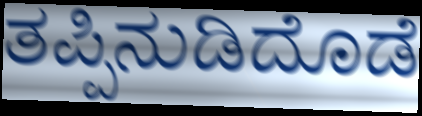
ತಪ್ಪಿನುಡಿದೊಡೆ